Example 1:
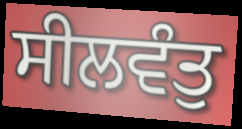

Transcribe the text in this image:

ਸੀਲਵੰਤੁ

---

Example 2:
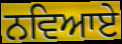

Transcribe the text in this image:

ਨਵਿਆਏ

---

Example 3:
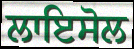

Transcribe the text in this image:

ਲਾਇਸੋਲ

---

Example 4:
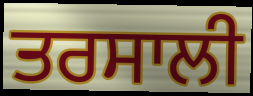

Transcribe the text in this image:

ਤਰਸਾਲੀ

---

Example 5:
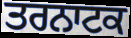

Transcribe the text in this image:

ਤਰਨਾਟਕ